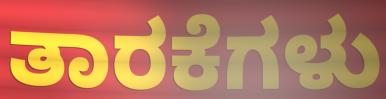
ತಾರಕೆಗಳು